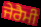
ਜੇਰੈਮੀ